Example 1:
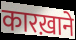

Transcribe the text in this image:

कारख़ाने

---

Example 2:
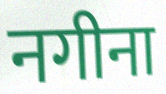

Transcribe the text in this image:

नगीना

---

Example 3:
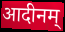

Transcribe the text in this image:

आदीनम्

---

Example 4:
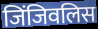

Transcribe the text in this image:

जिंजिवलिस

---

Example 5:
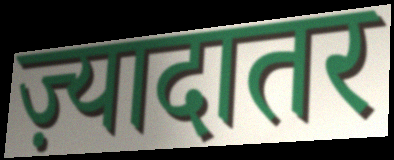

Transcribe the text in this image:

ज़्यादातर